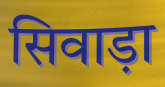
सिवाड़ा